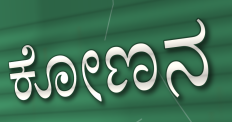
ಕೋಣನ